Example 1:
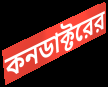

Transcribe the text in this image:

কনডাক্টরের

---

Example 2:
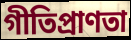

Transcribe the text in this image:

গীতিপ্রাণতা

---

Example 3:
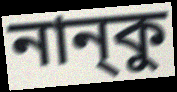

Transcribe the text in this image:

নান্‌কু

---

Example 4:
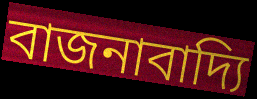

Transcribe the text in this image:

বাজনাবাদ্যি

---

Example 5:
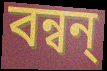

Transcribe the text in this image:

বন্বন্